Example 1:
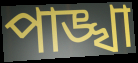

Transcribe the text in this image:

পাঙ্খা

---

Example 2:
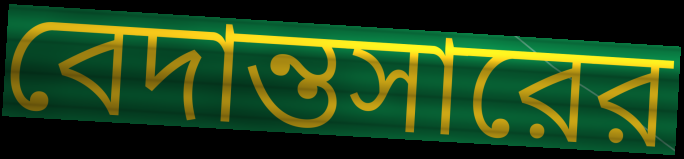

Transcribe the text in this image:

বেদান্তসারের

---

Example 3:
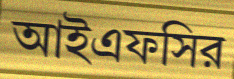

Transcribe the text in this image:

আইএফসির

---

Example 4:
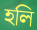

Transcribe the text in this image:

হলি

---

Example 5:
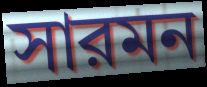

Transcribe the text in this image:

সারমন